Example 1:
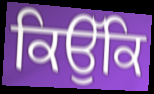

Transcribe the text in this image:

ਕਿਉੱਕਿ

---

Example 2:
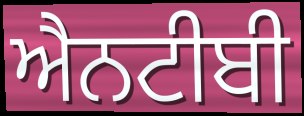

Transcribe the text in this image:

ਐਨਟੀਬੀ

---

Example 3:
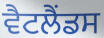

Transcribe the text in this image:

ਵੈਟਲੈਂਡਸ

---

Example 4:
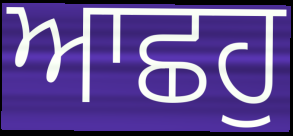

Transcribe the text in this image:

ਆਛਹੁ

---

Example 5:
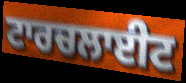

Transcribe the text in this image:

ਟਾਰਚਲਾਈਟ